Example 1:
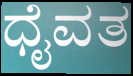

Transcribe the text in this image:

ಧೈವತ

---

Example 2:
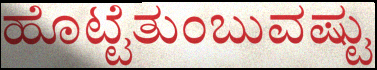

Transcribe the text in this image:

ಹೊಟ್ಟೆತುಂಬುವಷ್ಟು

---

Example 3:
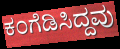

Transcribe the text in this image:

ಕಂಗೆಡಿಸಿದ್ದವು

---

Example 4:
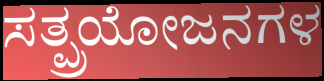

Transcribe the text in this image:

ಸತ್ಪ್ರಯೋಜನಗಳ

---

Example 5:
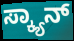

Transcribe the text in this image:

ಸ್ಕ್ಯಾನ್